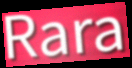
Rara